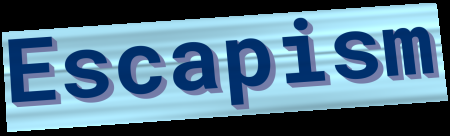
Escapism